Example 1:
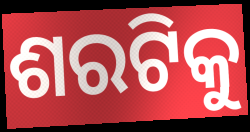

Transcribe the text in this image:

ଶରଟିକୁ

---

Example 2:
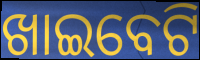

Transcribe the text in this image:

ଖାଇବେଟି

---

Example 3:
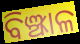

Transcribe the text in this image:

ବିଞ୍ଝାଳ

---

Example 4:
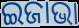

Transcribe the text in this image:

ଇଜାଭା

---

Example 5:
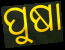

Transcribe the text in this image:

ପୁଷା